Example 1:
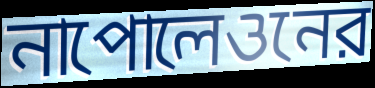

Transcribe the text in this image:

নাপোলেওনের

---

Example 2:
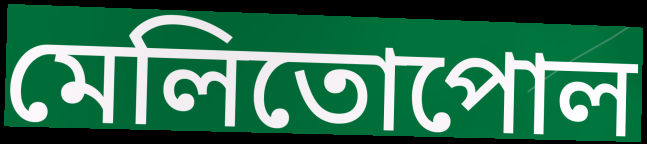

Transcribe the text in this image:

মেলিতোপোল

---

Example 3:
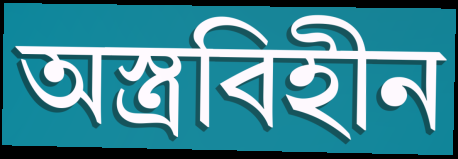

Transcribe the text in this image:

অস্ত্রবিহীন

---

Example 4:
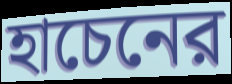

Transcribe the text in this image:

হাচেনের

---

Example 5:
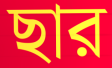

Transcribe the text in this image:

ছার